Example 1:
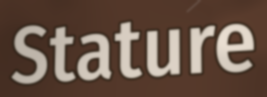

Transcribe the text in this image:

Stature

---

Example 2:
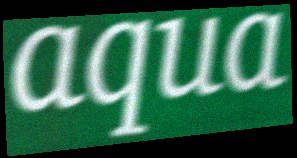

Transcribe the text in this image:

aqua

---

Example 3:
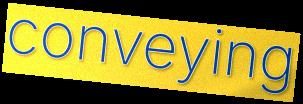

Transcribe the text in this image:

conveying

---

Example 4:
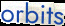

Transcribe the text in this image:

orbits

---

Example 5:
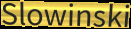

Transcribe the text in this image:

Slowinski